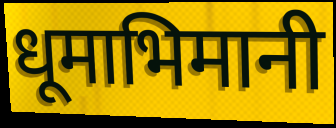
धूमाभिमानी